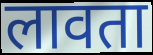
लावता